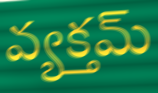
వ్యక్తమ్